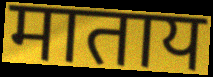
माताय